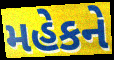
મહેકને